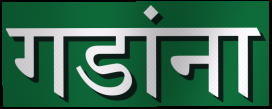
गडांना